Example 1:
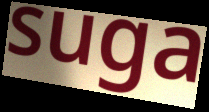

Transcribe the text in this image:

suga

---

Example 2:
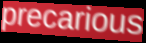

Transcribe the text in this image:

precarious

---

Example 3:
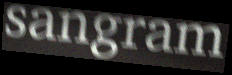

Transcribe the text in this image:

sangram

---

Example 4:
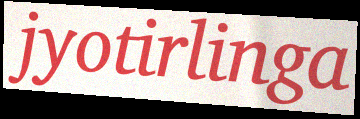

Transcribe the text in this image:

jyotirlinga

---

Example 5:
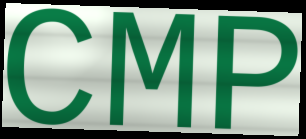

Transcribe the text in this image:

CMP